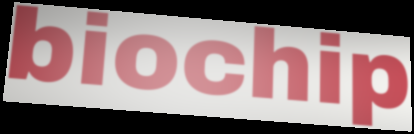
biochip